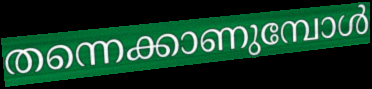
തന്നെക്കാണുമ്പോൾ